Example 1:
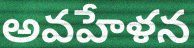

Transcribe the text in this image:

అవహేళన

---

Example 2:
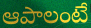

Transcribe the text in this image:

ఆపాలంటే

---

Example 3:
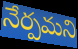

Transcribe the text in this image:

నేర్పమని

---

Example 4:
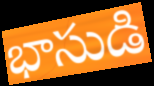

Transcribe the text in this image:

భాసుడి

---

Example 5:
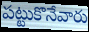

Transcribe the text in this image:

పట్టుకొనేవారు